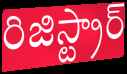
రిజిస్ట్రార్